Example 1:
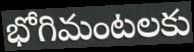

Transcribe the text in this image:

భోగిమంటలకు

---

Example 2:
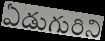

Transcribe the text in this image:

ఏడుగురిని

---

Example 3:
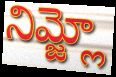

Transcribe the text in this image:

నిమ్జ్లో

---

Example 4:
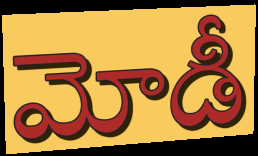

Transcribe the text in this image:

మోడీ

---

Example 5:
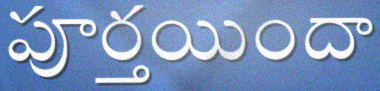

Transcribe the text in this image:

పూర్తయిందా